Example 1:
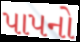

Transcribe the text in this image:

પાપનો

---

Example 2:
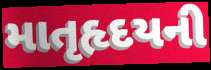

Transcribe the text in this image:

માતૃહૃદયની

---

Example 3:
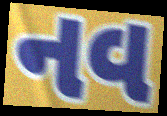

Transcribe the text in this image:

નવ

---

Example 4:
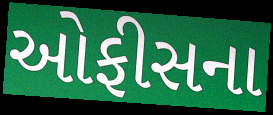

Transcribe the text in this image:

ઓફીસના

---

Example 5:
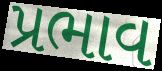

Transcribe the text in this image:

પ્રભાવ